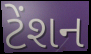
ટેંશન